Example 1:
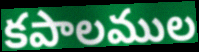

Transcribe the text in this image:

కపాలముల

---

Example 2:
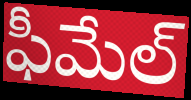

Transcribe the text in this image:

ఫీమేల్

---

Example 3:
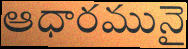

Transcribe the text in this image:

ఆధారమునై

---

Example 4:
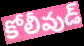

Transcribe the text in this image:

కోలీవుడ్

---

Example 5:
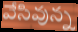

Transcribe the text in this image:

వేసివున్న